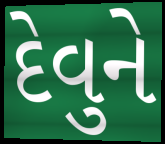
દેવુને